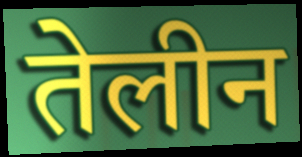
तेलीन